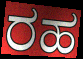
ರಹ